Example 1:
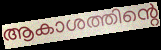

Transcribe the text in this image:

ആകാശത്തിന്റെ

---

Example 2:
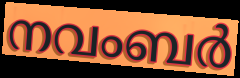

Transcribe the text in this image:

നവംബർ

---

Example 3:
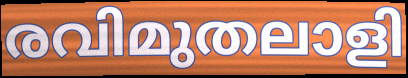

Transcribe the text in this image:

രവിമുതലാളി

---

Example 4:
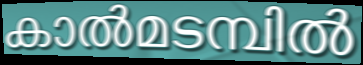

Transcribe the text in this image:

കാൽമടമ്പിൽ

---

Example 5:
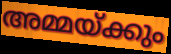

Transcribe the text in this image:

അമ്മയ്ക്കും